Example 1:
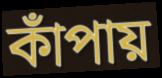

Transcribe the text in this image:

কাঁপায়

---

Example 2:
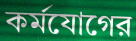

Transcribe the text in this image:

কর্মযোগের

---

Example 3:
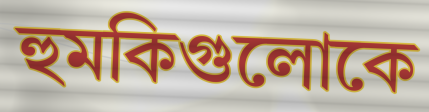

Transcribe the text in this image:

হুমকিগুলোকে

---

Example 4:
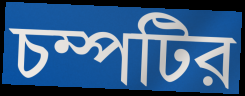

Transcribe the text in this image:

চম্পটির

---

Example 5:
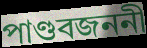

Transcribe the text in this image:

পাণ্ডবজননী